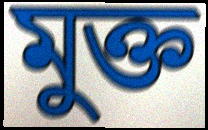
মুক্ত